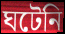
ঘটেনি